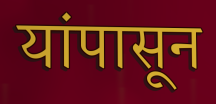
यांपासून